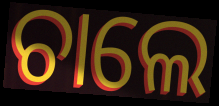
ଚାଲେ